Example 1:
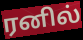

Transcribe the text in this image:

ரனில்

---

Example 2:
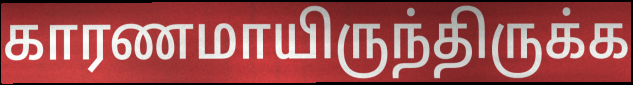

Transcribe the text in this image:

காரணமாயிருந்திருக்க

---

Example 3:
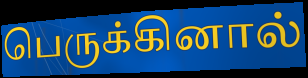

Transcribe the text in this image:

பெருக்கினால்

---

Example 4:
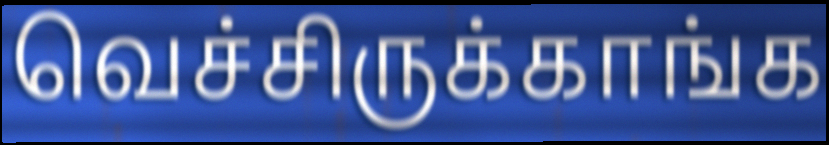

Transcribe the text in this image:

வெச்சிருக்காங்க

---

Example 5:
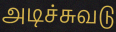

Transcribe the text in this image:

அடிச்சுவடு